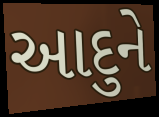
આદુને